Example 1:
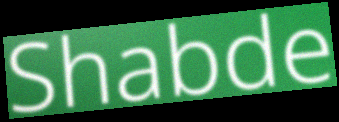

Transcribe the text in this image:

Shabde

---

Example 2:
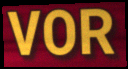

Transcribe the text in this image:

VOR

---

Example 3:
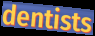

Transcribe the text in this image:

dentists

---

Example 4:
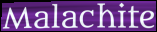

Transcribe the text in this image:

Malachite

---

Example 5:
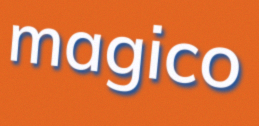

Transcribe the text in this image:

magico